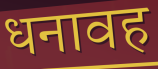
धनावह